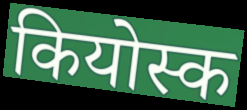
कियोस्क